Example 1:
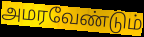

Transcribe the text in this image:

அமரவேண்டும்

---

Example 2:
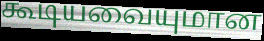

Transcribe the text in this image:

கூடியவையுமான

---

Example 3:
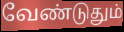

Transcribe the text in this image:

வேண்டுதும்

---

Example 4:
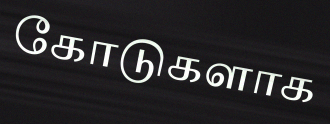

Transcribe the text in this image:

கோடுகளாக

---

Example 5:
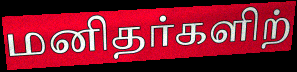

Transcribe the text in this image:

மனிதர்களிற்